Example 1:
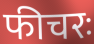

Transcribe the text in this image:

फीचरः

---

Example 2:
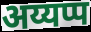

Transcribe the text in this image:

अय्यप्प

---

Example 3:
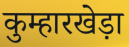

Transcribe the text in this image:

कुम्हारखेड़ा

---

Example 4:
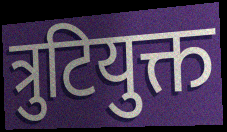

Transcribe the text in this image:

त्रुटियुक्त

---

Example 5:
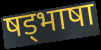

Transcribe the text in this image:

षड्भाषा